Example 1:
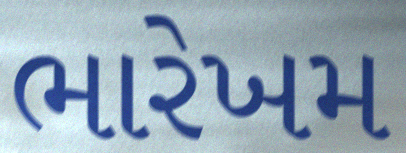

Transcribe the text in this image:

ભારેખમ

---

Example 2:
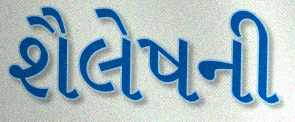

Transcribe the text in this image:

શૈલેષની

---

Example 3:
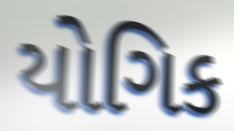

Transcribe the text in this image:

યોગિક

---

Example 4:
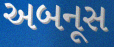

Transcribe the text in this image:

અબનૂસ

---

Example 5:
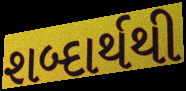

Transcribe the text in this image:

શબ્દાર્થથી